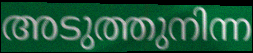
അടുത്തുനിന്ന